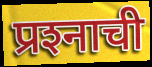
प्रश्‍नाची